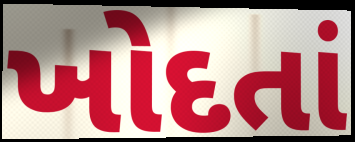
ખોદતાં